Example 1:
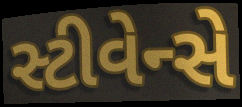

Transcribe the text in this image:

સ્ટીવેન્સે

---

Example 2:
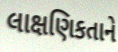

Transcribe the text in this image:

લાક્ષણિકતાને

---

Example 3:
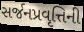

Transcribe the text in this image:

સર્જનપ્રવૃત્તિની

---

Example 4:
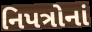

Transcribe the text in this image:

નિપત્રોનાં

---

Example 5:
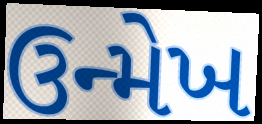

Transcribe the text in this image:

ઉન્મેખ